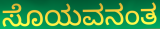
ಸೊಯವನಂತ